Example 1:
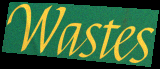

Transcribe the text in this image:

Wastes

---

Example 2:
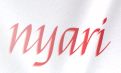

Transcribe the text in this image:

nyari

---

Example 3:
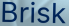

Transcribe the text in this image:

Brisk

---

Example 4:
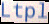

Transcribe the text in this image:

Ltpl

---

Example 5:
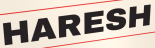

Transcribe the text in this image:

HARESH